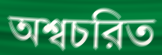
অশ্বচরিত